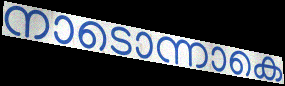
നാടൊന്നാകെ